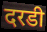
दरडी